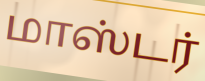
மாஸ்டர்